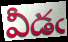
వీడఁ